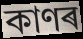
কাণৰ